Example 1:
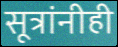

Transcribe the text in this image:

सूत्रांनीही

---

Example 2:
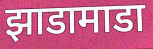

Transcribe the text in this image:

झाडामाडा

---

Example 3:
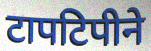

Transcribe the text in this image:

टापटिपीने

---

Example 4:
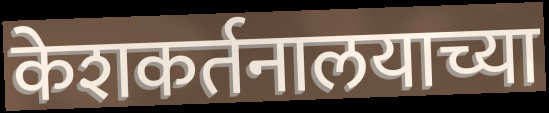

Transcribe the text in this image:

केशकर्तनालयाच्या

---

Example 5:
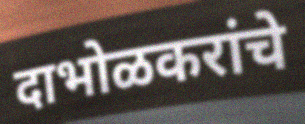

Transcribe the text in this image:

दाभोळकरांचे